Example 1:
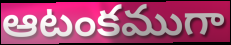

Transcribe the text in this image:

ఆటంకముగా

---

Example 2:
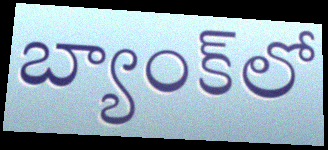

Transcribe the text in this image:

బ్యాంక్‌లో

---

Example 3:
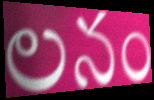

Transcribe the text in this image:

లనం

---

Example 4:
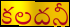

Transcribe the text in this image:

కలదనీ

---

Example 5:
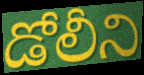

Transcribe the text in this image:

డోలీని